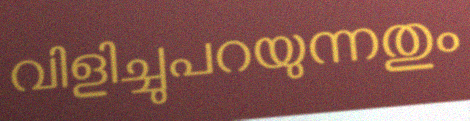
വിളിച്ചുപറയുന്നതും